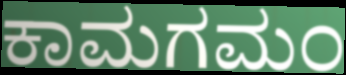
ಕಾಮಗಮಂ